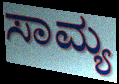
ಸಾಮ್ಯ